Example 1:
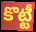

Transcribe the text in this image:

కొట్టీ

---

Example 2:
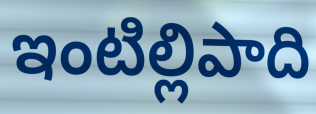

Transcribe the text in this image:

ఇంటిల్లిపాది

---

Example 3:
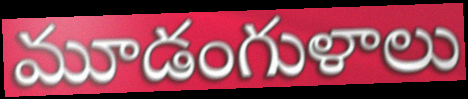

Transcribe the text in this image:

మూడంగుళాలు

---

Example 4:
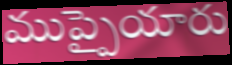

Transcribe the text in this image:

ముప్పైయారు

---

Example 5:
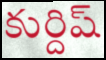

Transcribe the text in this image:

కుర్దిష్